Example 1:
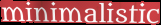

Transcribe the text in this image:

minimalistic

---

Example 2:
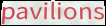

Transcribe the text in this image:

pavilions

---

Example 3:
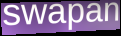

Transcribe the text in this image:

swapan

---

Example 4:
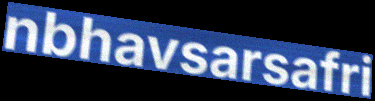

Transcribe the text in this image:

nbhavsarsafri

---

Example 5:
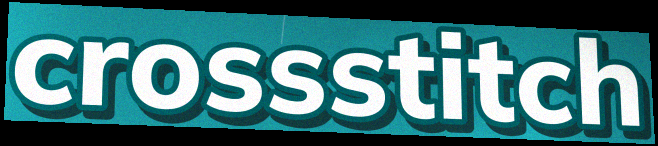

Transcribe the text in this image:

crossstitch